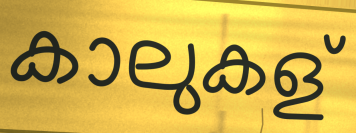
കാലുകള്